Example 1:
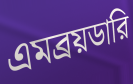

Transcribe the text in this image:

এমব্রয়ডারি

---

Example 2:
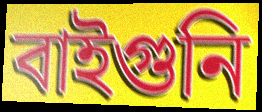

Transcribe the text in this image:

বাইগুনি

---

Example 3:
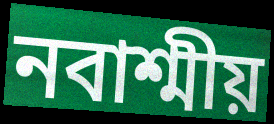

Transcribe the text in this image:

নবাশ্মীয়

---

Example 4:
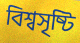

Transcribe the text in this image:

বিশ্বসৃষ্টি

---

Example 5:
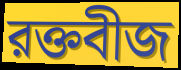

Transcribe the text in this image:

রক্তবীজ